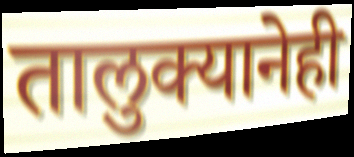
तालुक्यानेही